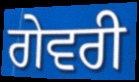
ਗੇਵਰੀ